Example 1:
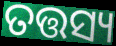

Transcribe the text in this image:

ତତ୍ତସ୍ୟ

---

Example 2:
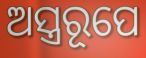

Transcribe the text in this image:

ଅସ୍ତ୍ରରୂପେ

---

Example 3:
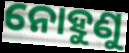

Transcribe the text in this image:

ନୋହୁଣୁ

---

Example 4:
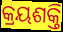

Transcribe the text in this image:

କ୍ରୟଶକ୍ତି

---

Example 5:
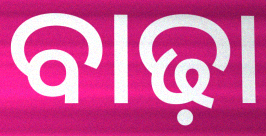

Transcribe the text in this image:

ବାଢ଼ା